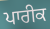
ਪਾਰੀਕ